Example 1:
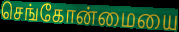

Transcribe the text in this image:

செங்கோன்மையை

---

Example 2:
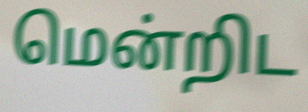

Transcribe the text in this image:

மென்றிட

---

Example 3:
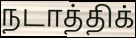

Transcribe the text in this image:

நடாத்திக்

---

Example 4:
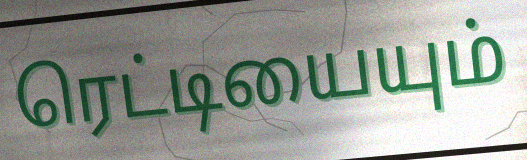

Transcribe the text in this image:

ரெட்டியையும்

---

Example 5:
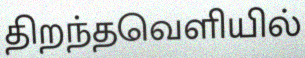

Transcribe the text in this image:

திறந்தவெளியில்